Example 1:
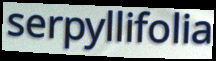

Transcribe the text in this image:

serpyllifolia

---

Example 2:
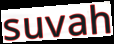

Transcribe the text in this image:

suvah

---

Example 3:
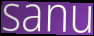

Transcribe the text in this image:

sanu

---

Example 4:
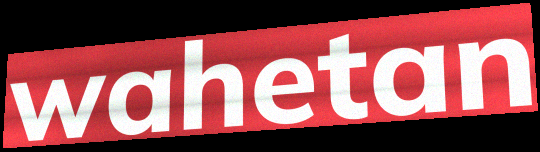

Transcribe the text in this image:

wahetan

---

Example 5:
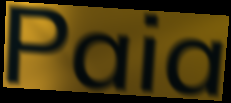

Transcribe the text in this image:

Paia